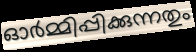
ഓർമ്മിപ്പിക്കുന്നതും